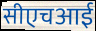
सीएचआई